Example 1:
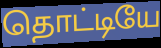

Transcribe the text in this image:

தொட்டியே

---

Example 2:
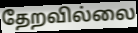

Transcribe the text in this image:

தேறவில்லை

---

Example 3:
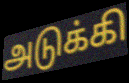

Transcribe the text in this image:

அடுக்கி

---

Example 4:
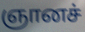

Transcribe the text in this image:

ஞானச்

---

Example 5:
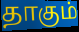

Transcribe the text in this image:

தாகும்